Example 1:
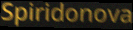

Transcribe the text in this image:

Spiridonova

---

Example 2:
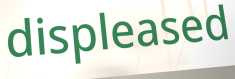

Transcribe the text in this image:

displeased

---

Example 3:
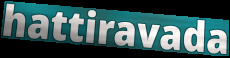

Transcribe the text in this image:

hattiravada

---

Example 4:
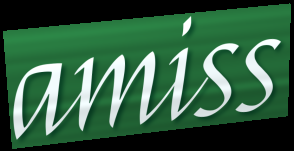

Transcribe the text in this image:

amiss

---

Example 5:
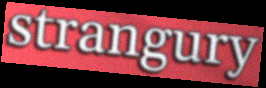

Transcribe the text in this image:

strangury